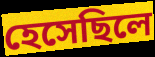
হেসেছিলে